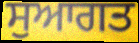
ਸੁਆਗਤ